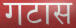
गटास